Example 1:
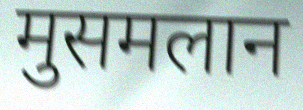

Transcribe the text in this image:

मुसमलान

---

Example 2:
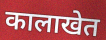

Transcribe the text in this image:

कालाखेत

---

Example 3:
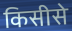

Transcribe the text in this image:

किसीसे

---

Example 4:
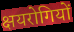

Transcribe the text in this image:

क्षयरोगियों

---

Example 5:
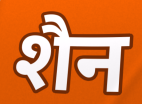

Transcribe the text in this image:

शैन